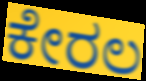
ಕೇರಲ